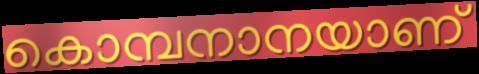
കൊമ്പനാനയാണ്